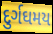
દુર્ગઘમય